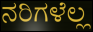
ನರಿಗಳೆಲ್ಲ